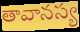
తావానస్య